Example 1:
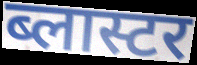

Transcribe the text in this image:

ब्लास्टर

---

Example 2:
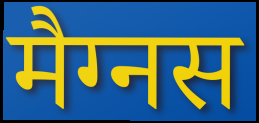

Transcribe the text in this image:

मैग्नस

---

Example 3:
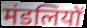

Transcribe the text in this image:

मंडलियों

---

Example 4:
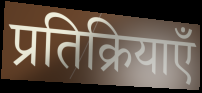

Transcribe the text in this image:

प्रतिक्रियाएँ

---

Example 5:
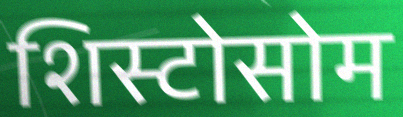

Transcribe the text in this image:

शिस्टोसोम